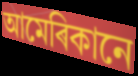
আমেৰিকানে